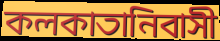
কলকাতানিবাসী